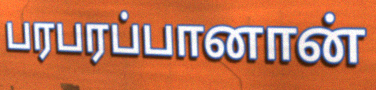
பரபரப்பானான்